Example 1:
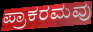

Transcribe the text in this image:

ಪ್ರಾಕರಮವು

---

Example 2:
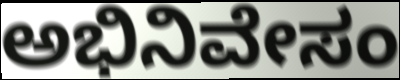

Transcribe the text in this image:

ಅಭಿನಿವೇಸಂ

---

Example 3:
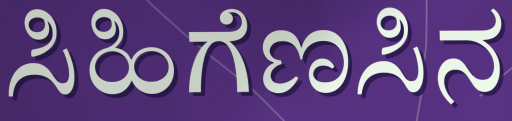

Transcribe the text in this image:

ಸಿಹಿಗೆಣಸಿನ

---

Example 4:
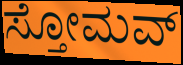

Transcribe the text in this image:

ಸ್ತೋಮವ್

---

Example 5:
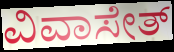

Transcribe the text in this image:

ವಿವಾಸೇತ್